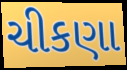
ચીકણા